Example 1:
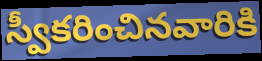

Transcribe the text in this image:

స్వీకరించినవారికి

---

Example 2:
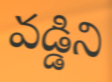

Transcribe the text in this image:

వడ్డిని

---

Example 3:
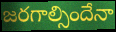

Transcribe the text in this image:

జరగాల్సిందేనా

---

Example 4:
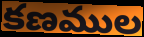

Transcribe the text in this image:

కణముల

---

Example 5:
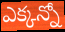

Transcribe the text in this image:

ఎక్కన్నో